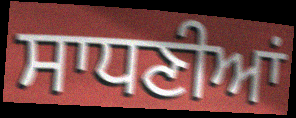
ਸਾਧਣੀਆਂ